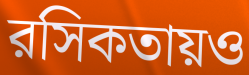
রসিকতায়ও